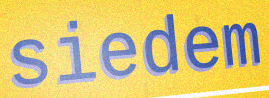
siedem